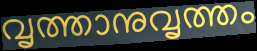
വൃത്താനുവൃത്തം